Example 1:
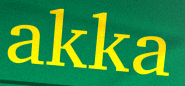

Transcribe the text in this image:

akka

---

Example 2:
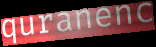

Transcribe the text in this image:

quranenc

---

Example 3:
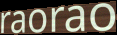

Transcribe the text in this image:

raorao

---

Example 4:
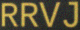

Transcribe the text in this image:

RRVJ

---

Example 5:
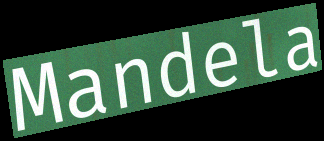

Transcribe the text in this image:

Mandela